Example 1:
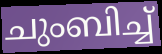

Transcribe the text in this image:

ചുംബിച്ച്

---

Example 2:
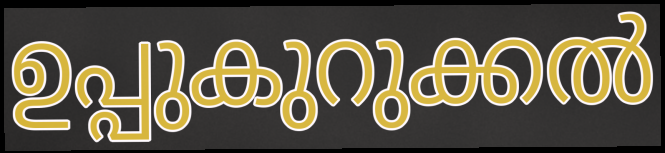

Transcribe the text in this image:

ഉപ്പുകുറുക്കൽ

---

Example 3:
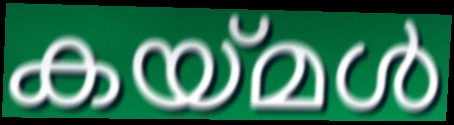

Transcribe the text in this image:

കയ്മൾ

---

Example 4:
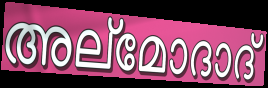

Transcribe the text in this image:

അല്മോദാദ്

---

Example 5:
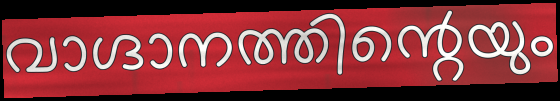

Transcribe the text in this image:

വാഗ്ദാനത്തിന്റെയും